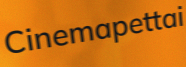
Cinemapettai